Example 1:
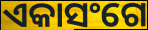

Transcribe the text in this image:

ଏକାସଂଗେ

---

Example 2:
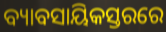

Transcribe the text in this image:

ବ୍ୟାବସାୟିକସ୍ତରରେ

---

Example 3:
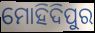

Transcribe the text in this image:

ମୋହିଦିପୁର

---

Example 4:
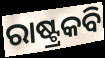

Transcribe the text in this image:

ରାଷ୍ଟ୍ରକବି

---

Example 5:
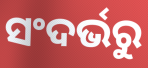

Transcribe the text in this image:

ସଂଦର୍ଭରୁ